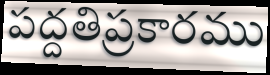
పద్దతిప్రకారము